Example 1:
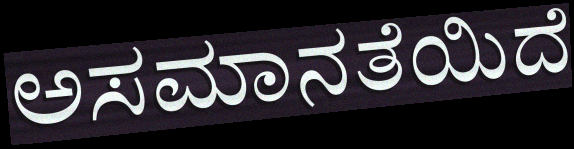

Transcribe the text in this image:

ಅಸಮಾನತೆಯಿದೆ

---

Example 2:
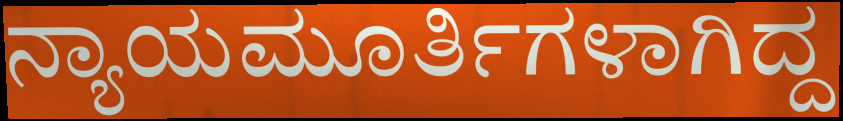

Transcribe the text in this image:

ನ್ಯಾಯಮೂರ್ತಿಗಳಾಗಿದ್ದ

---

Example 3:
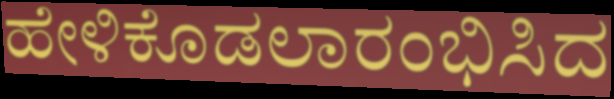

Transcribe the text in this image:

ಹೇಳಿಕೊಡಲಾರಂಭಿಸಿದ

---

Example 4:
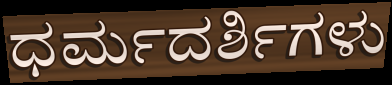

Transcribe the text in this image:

ಧರ್ಮದರ್ಶಿಗಳು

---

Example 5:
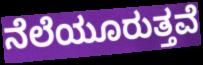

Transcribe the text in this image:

ನೆಲೆಯೂರುತ್ತವೆ